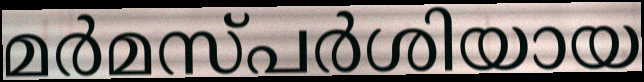
മർമസ്പർശിയായ